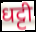
धट्टी